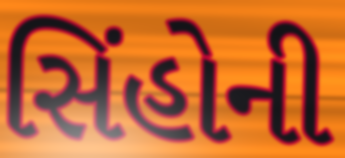
સિંહોની